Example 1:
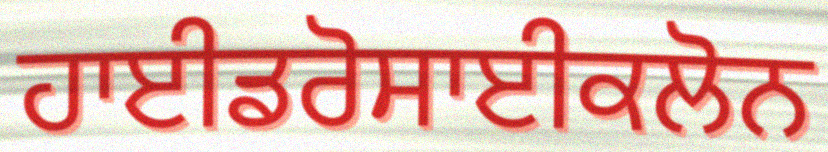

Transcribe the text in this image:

ਹਾਈਡਰੋਸਾਈਕਲੋਨ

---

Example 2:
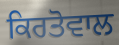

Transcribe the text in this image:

ਕਿਰਤੋਵਾਲ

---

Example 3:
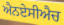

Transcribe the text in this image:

ਐਨਏਸੀਐਚ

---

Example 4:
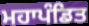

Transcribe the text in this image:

ਮਹਾਪੰਡਿਤ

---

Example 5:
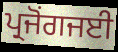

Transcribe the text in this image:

ਪ੍ਰਜੋਂਗਜਈ